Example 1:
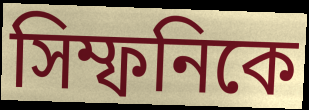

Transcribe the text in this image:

সিম্ফনিকে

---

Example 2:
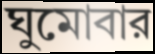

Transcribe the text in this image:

ঘুমোবার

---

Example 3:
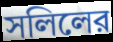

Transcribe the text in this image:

সলিলের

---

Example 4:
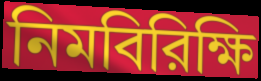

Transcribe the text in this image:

নিমবিরিক্ষি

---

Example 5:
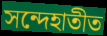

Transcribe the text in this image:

সন্দেহাতীত